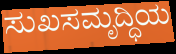
ಸುಖಸಮೃದ್ಧಿಯ